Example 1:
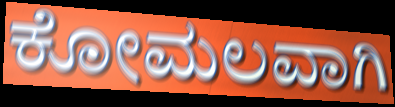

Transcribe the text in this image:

ಕೋಮಲವಾಗಿ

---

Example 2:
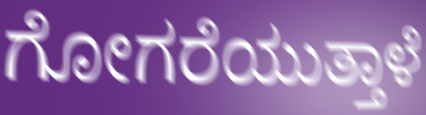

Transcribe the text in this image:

ಗೋಗರೆಯುತ್ತಾಳೆ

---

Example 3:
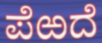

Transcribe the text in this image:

ಪೆಱದೆ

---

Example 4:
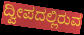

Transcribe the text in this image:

ದ್ವೀಪದಲ್ಲಿರುವ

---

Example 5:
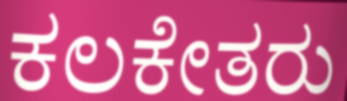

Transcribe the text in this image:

ಕಲಕೇತರು